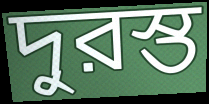
দুরস্ত